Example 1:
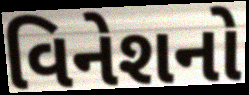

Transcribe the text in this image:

વિનેશનો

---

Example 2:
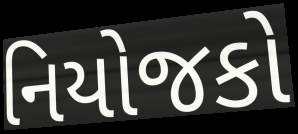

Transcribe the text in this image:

નિયોજકો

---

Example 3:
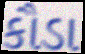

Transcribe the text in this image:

કૌડા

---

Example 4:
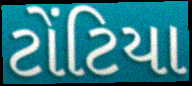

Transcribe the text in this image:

ટોંટિયા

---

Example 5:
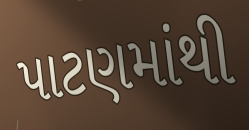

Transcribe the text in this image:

પાટણમાંથી